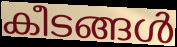
കീടങ്ങൾ